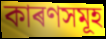
কাৰণসমূহ